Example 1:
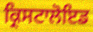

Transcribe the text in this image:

ਕ੍ਰਿਸਟਾਲੋਇਡ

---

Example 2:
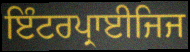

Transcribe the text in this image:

ਇੰਟਰਪ੍ਰਾਈਜਿਜ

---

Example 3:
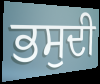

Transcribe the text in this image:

ਭਸੁਦੀ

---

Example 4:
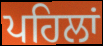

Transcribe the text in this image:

ਪਹਿਲਾਂ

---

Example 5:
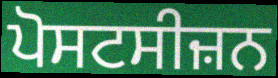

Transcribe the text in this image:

ਪੋਸਟਸੀਜ਼ਨ